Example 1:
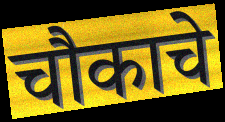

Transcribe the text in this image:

चौकाचे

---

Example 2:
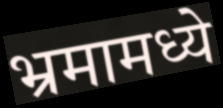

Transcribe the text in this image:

भ्रमामध्ये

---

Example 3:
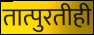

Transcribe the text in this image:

तात्पुरतीही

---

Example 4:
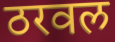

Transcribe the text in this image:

ठरवल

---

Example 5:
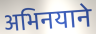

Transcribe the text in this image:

अभिनयाने